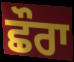
ਛੌਰਾ